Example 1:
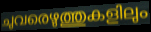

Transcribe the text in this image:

ചുവരെഴുത്തുകളിലും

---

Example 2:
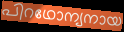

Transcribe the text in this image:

പിറഥോന്യനായ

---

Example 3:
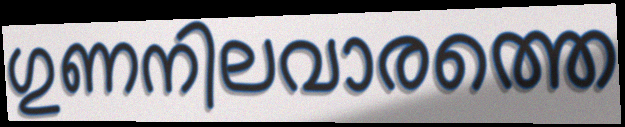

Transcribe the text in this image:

ഗുണനിലവാരത്തെ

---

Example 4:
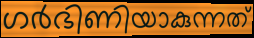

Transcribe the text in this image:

ഗർഭിണിയാകുന്നത്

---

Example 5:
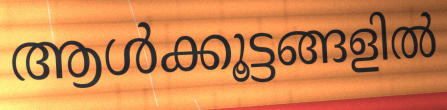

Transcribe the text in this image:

ആൾക്കൂട്ടങ്ങളിൽ